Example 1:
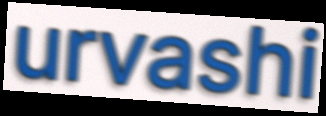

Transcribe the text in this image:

urvashi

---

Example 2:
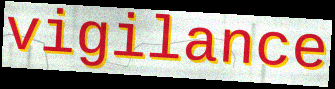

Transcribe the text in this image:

vigilance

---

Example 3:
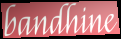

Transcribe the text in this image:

bandhine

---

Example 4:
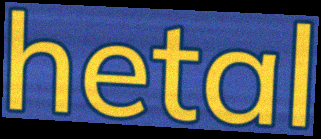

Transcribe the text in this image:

hetal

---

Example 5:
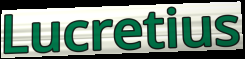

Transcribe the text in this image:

Lucretius